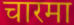
चारमा